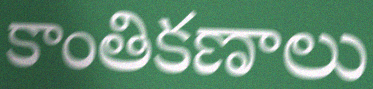
కాంతికణాలు